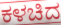
ಕಳಚಿದ